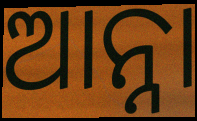
ଆନ୍ନା